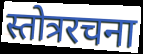
स्तोत्ररचना